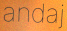
andaj